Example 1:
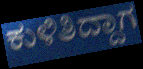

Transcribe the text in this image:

ಕುಳಿತಿದ್ದಾಗ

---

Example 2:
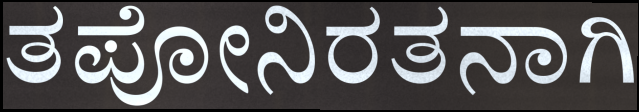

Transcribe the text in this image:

ತಪೋನಿರತನಾಗಿ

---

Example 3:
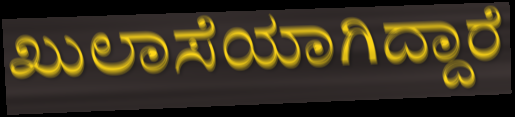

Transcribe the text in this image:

ಖುಲಾಸೆಯಾಗಿದ್ದಾರೆ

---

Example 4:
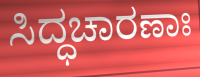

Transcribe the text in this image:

ಸಿದ್ಧಚಾರಣಾಃ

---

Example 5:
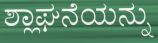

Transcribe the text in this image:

ಶ್ಲಾಘನೆಯನ್ನು